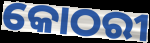
କୋଠରୀ